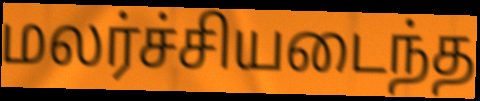
மலர்ச்சியடைந்த